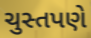
ચુસ્તપણે